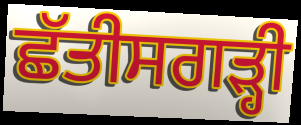
ਛੱਤੀਸਗੜ੍ਹੀ